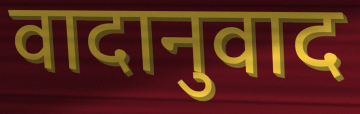
वादानुवाद